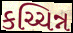
કચ્ચિન્ન